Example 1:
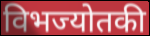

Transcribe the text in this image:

विभज्योतकी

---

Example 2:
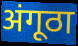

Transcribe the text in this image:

अंगूठा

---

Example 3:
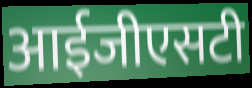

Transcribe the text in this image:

आईजीएसटी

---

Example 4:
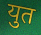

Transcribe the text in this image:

युत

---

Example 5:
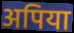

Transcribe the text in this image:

अपिया